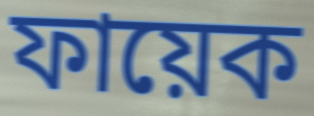
ফায়েক